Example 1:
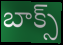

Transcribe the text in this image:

బాక్స్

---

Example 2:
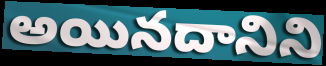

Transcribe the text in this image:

అయినదానిని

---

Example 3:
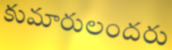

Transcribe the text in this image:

కుమారులందరు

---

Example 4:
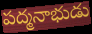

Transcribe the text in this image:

పద్మనాభుడు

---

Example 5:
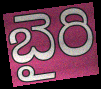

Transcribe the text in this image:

బైరి